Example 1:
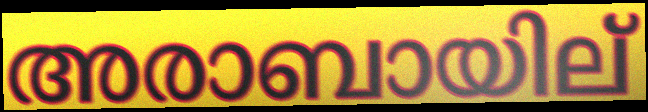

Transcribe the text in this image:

അരാബായില്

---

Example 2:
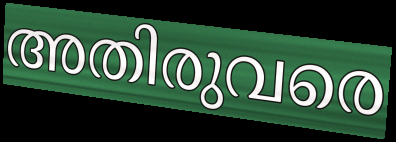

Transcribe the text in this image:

അതിരുവരെ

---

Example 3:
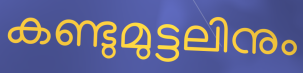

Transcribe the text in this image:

കണ്ടുമുട്ടലിനും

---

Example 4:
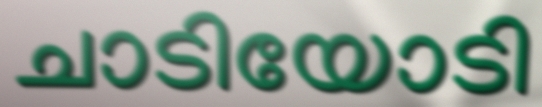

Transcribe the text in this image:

ചാടിയോടി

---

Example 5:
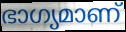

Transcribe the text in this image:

ഭാഗ്യമാണ്